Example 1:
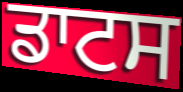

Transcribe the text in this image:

ਡਾਟਸ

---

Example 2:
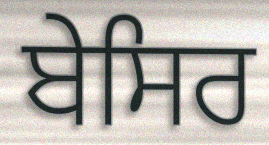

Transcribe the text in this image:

ਬੇਸਿਰ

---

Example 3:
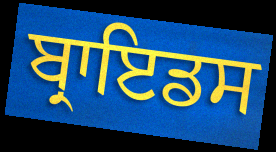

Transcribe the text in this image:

ਬ੍ਰਾਇਡਸ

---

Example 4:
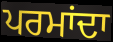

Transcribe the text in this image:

ਪਰਮਾਂਦਾ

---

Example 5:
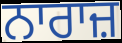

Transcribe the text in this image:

ਨਾਰਾਜ਼